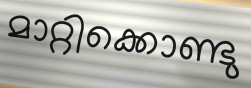
മാറ്റിക്കൊണ്ടു